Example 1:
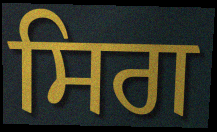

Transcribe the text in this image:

ਸਿਗ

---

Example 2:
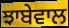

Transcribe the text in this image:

ਝਾਬੇਵਾਲ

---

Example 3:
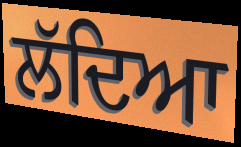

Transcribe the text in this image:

ਲੱਦਿਆ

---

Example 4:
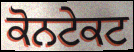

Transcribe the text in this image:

ਕੋਨਟੇਕਟ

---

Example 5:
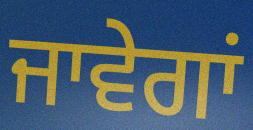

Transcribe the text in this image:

ਜਾਵੇਗਾਂ